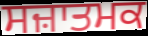
ਸਜ਼ਾਤਮਕ